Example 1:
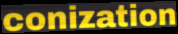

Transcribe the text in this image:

conization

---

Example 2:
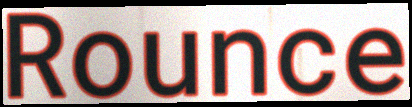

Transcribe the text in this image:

Rounce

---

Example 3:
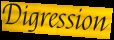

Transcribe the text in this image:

Digression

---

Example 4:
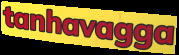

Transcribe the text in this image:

tanhavagga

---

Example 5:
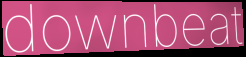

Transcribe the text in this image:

downbeat